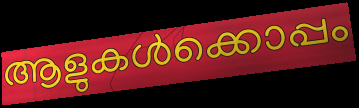
ആളുകൾക്കൊപ്പം